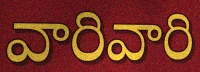
వారివారి